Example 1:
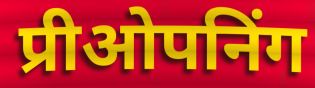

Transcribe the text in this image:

प्रीओपनिंग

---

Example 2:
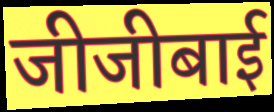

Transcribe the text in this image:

जीजीबाई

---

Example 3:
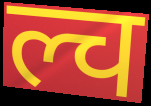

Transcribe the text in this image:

ल्च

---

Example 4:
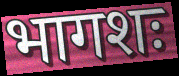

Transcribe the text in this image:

भागशः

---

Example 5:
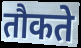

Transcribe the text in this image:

तौकते